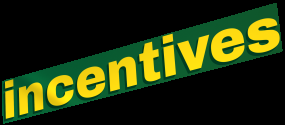
incentives